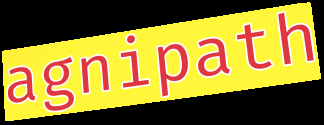
agnipath